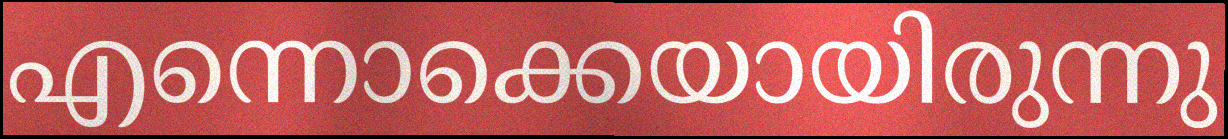
എന്നൊക്കെയായിരുന്നു